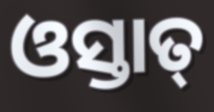
ଓସ୍ତାତ୍